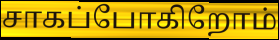
சாகப்போகிறோம்